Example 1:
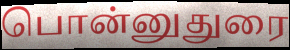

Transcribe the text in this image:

பொன்னுதுரை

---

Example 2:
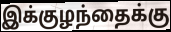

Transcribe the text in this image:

இக்குழந்தைக்கு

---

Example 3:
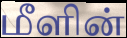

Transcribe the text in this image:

மீளின்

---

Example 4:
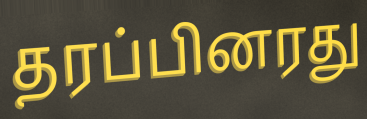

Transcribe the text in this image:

தரப்பினரது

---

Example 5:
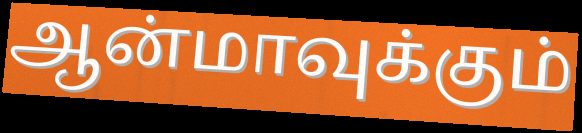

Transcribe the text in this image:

ஆன்மாவுக்கும்